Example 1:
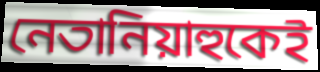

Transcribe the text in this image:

নেতানিয়াহুকেই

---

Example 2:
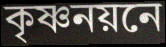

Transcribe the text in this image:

কৃষ্ণনয়নে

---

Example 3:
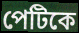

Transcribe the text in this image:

পেটিকে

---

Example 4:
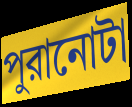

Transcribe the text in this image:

পুরানোটা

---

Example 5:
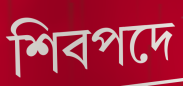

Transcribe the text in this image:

শিবপদে